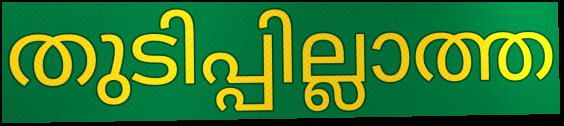
തുടിപ്പില്ലാത്ത